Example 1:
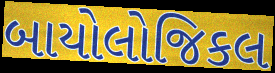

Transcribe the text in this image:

બાયોલોજિકલ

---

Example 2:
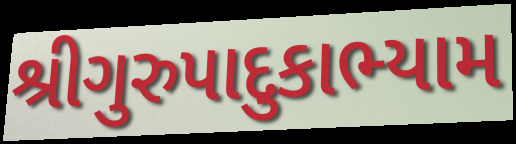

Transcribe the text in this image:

શ્રીગુરુપાદુકાભ્યામ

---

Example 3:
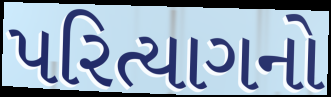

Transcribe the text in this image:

પરિત્યાગનો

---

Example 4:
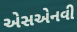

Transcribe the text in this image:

એસએનવી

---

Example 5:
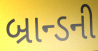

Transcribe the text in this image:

બ્રાન્ડની